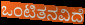
ಒಂಟಿತನವಿದೆ